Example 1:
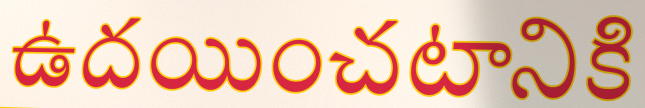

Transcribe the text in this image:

ఉదయించటానికి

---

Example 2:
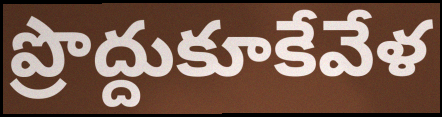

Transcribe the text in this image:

ప్రొద్దుకూకేవేళ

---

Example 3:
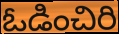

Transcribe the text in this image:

ఓడించిరి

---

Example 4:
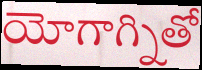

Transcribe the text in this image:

యోగాగ్నితో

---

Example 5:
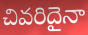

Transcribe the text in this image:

చివరిదైనా